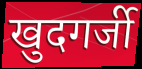
खुदगर्जी